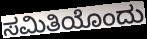
ಸಮಿತಿಯೊಂದು